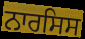
ਨਾਰਸਿਸ